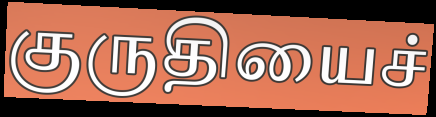
குருதியைச்